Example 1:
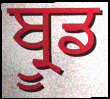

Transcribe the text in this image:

ਬ੍ਰੂਡ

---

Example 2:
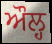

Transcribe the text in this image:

ਔਲ੍ਹ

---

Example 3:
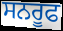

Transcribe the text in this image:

ਸਨਰੂਫ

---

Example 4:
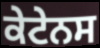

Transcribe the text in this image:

ਕੇਟੇਨਸ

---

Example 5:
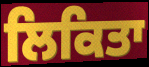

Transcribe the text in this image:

ਲਿਕਿਤਾ